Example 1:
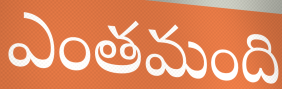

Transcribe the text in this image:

ఎంతమంది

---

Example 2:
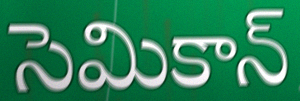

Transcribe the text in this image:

సెమికాన్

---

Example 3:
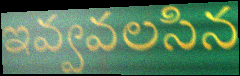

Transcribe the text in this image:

ఇవ్వవలసిన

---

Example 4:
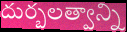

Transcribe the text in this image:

దుర్బలత్వాన్ని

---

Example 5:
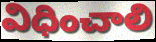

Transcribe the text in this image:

విధించాలి